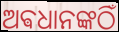
ଅଵଧାନଙ୍କଠିଁ